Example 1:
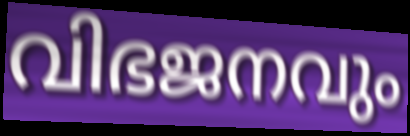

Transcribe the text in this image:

വിഭജനവും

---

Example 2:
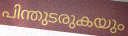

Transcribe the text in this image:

പിന്തുടരുകയും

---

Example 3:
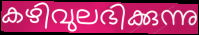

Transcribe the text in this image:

കഴിവുലഭിക്കുന്നു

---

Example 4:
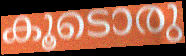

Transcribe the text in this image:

കൂടൊരു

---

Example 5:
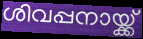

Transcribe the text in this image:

ശിവപ്പനായ്ക്ക്